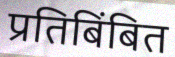
प्रतिबिंबित